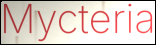
Mycteria